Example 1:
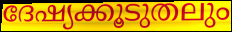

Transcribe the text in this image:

ദേഷ്യക്കൂടുതലും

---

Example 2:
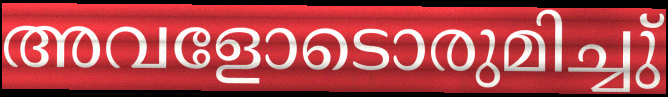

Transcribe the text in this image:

അവളോടൊരുമിച്ചു്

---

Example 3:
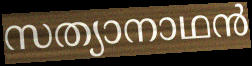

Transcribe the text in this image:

സത്യാനാഥൻ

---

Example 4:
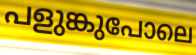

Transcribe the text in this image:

പളുങ്കുപോലെ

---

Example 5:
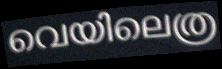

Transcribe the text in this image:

വെയിലെത്ര